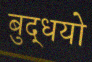
बुद्धयो